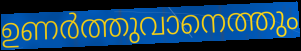
ഉണർത്തുവാനെത്തും